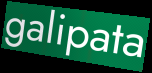
galipata